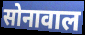
सोनावाल